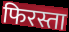
फिरस्ता